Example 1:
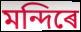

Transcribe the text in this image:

মন্দিৰে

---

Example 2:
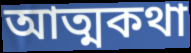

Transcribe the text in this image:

আত্মকথা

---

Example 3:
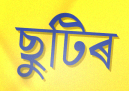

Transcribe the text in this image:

ছুটিৰ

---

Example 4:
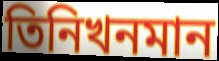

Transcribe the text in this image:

তিনিখনমান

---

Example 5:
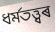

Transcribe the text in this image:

ধৰ্মতত্ত্বৰ